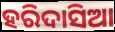
ହରିଦାସିଆ